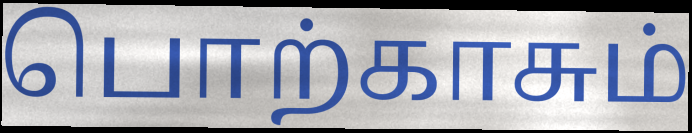
பொற்காசும்